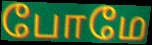
போமே